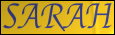
SARAH